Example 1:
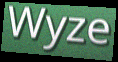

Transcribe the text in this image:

Wyze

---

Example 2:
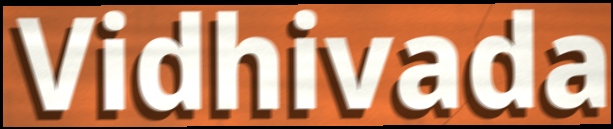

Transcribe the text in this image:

Vidhivada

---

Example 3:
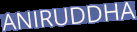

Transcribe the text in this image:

ANIRUDDHA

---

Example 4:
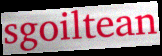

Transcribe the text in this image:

sgoiltean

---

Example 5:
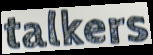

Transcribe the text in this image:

talkers